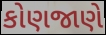
કોણજાણે